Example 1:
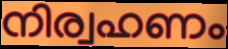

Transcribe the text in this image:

നിര്വഹണം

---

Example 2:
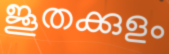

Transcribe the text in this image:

ജൂതക്കുളം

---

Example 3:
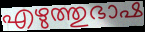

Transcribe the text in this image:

എഴുത്തുഭാഷ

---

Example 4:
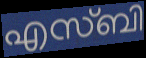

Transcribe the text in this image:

എസ്ബി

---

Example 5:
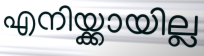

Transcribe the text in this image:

എനിയ്ക്കായില്ല